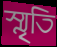
স্মৃতি